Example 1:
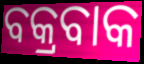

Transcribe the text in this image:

ବକ୍ରବାକ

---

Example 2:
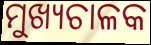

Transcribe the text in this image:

ମୁଖ୍ୟଚାଳକ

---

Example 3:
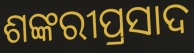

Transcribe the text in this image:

ଶଙ୍କରୀପ୍ରସାଦ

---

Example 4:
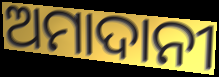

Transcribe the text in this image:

ଅମାଦାନୀ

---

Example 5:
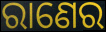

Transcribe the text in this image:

ରାଣେର